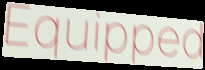
Equipped